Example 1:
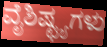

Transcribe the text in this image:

ವೈಶಿಷ್ಟ್ಯಗಳು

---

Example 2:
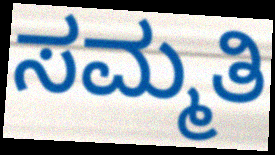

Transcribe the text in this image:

ಸಮ್ಮತಿ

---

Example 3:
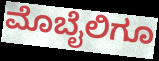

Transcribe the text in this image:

ಮೊಬೈಲಿಗೂ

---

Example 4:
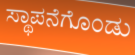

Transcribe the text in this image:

ಸ್ಥಾಪನೆಗೊಂಡು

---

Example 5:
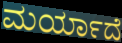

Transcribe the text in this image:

ಮರ್ಯಾದೆ